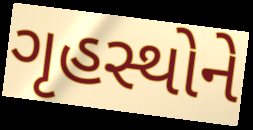
ગૃહસ્થોને